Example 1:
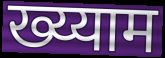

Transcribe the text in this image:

ख्य्याम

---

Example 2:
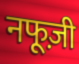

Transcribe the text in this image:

नफूज़ी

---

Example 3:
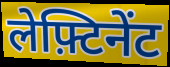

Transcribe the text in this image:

लेफ़्टिनेंट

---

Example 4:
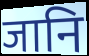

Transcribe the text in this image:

जानि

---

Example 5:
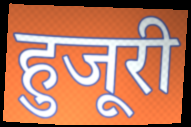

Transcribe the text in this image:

हुजूरी